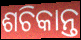
ଶଚିକାନ୍ତ